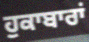
ਹੁਕਾਬਾਰਾਂ